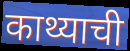
काथ्याची